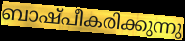
ബാഷ്പീകരിക്കുന്നു